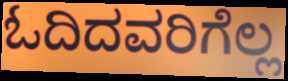
ಓದಿದವರಿಗೆಲ್ಲ